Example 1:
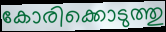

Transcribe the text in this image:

കോരിക്കൊടുത്തു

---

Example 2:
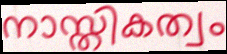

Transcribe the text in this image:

നാസ്തികത്വം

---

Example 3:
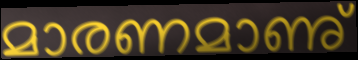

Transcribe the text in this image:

മാരണമാണു്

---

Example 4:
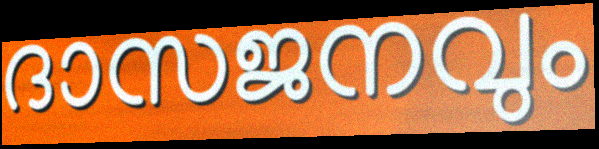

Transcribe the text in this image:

ദാസജനവും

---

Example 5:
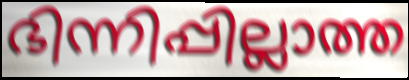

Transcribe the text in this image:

ഭിന്നിപ്പില്ലാത്ത